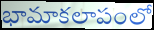
భామాకలాపంలో